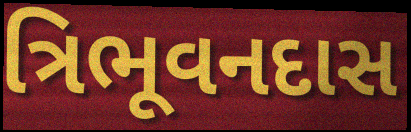
ત્રિભૂવનદાસ